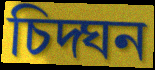
চিদ্ঘন